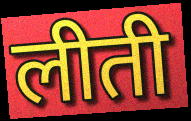
लीती